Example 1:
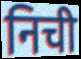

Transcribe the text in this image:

निची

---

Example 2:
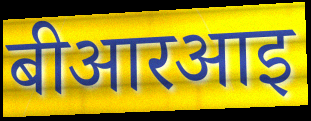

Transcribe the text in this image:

बीआरआइ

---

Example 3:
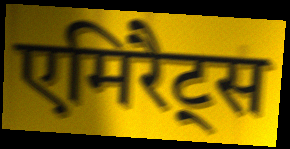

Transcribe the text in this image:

एमिरैट्स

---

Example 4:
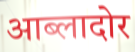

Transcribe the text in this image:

आब्लादोर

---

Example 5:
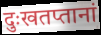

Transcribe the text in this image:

दुःखतप्तानां